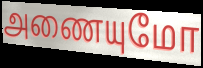
அணையுமோ